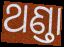
ଥଣ୍ଡା